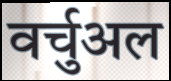
वर्चुअल